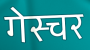
गेस्चर